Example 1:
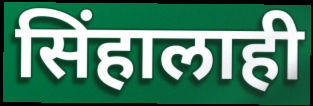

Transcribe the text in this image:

सिंहालाही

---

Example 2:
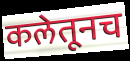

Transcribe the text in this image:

कलेतूनच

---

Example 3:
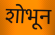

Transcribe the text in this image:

शोभून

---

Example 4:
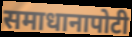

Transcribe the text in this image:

समाधानापोटी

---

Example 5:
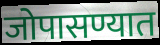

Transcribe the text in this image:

जोपासण्यात